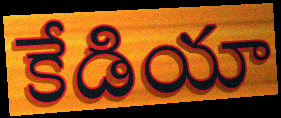
కేడియా